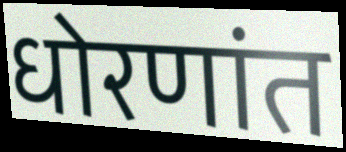
धोरणांत